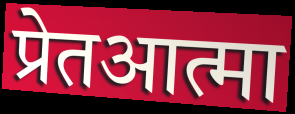
प्रेतआत्मा